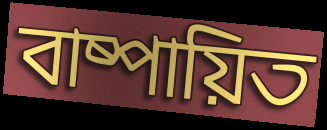
বাষ্পায়িত